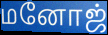
மனோஜ்